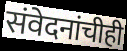
संवेदनांचीही